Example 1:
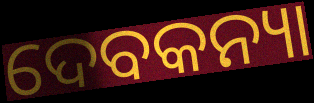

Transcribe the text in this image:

ଦେବକନ୍ୟା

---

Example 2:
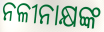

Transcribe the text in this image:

ନଳୀନାକ୍ଷଙ୍କ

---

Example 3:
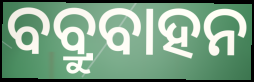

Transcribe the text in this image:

ବବ୍ରୁବାହନ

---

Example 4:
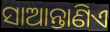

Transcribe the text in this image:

ସାଆନ୍ତାଣିଏ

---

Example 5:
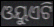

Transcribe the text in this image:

ଓୟୁଏଟି